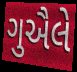
ગુઐલે